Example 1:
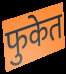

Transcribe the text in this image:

फुकेत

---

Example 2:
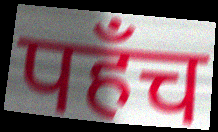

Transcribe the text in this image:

पहँच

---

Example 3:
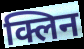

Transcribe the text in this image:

क्लिन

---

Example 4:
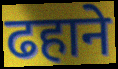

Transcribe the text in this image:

ढहाने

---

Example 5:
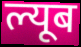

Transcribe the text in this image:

ल्यूब